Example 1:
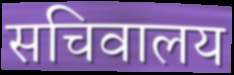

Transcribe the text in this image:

सचिवालय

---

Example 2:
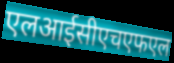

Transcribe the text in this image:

एलआईसीएचएफएल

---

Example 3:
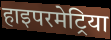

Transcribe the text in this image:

हाइपरमेट्रिया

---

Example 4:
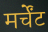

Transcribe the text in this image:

मर्चेंट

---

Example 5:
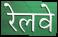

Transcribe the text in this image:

रेलवे